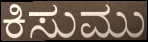
ಕಿಸುಮು